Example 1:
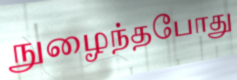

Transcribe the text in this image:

நுழைந்தபோது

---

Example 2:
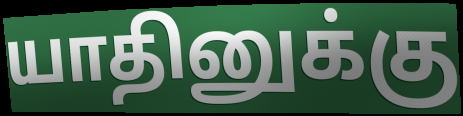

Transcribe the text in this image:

யாதினுக்கு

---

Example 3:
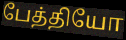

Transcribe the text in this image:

பேத்தியோ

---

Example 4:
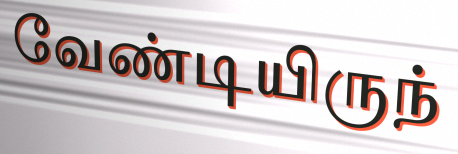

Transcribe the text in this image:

வேண்டியிருந்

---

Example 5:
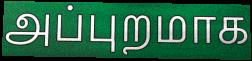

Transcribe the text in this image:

அப்புறமாக